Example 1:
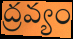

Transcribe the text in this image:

ద్రవ్యం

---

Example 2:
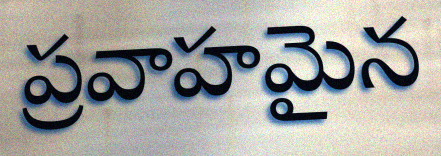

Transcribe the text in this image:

ప్రవాహమైన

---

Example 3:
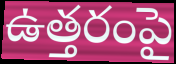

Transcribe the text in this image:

ఉత్తరంపై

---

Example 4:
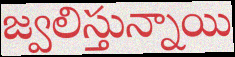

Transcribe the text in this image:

జ్వలిస్తున్నాయి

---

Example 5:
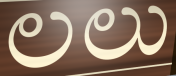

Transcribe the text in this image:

లలు